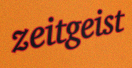
zeitgeist